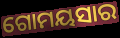
ଗୋମୟସାର